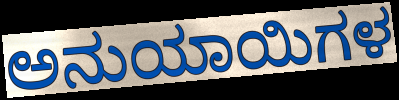
ಅನುಯಾಯಿಗಳ